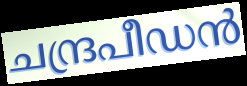
ചന്ദ്രപീഡൻ